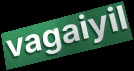
vagaiyil